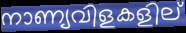
നാണ്യവിളകളില്